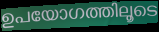
ഉപയോഗത്തിലൂടെ